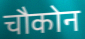
चौकोन